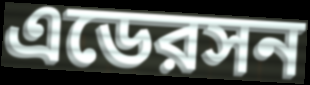
এডেরসন